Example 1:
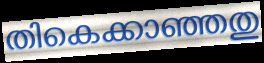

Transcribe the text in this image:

തികെക്കാഞ്ഞതു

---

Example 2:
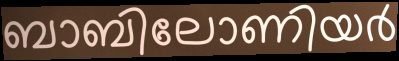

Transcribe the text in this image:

ബാബിലോണിയർ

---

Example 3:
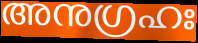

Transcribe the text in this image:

അനുഗ്രഹഃ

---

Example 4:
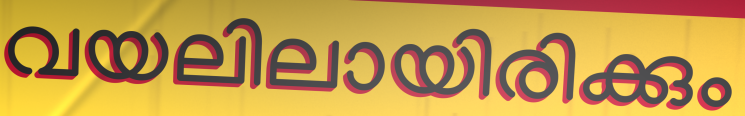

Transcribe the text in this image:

വയലിലായിരിക്കും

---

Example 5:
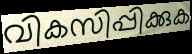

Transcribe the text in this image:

വികസിപ്പിക്കുക